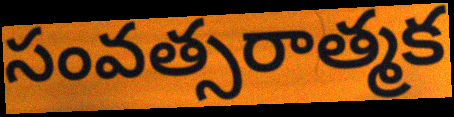
సంవత్సరాత్మక